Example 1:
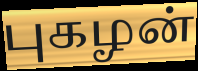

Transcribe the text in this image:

புகழன்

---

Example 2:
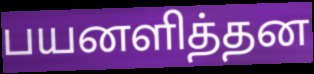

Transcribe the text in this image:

பயனளித்தன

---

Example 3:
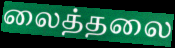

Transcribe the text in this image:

லைத்தலை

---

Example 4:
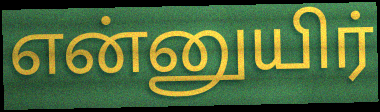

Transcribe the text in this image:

என்னுயிர்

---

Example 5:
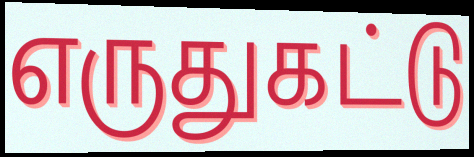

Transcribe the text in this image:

எருதுகட்டு